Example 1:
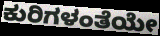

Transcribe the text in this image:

ಕುರಿಗಳಂತೆಯೇ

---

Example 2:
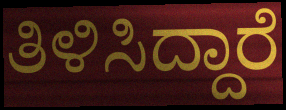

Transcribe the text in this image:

ತಿಳಿಸಿದ್ದಾರೆ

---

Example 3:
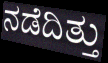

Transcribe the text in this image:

ನಡೆದಿತ್ತು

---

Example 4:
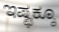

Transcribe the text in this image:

ಇಷ್ಟಕ್ಕೂ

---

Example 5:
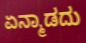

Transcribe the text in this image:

ಏನ್ಮಾಡದು